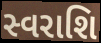
સ્વરાશિ